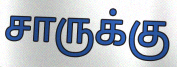
சாருக்கு